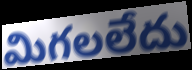
మిగలలేదు